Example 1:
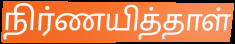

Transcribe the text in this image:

நிர்ணயித்தாள்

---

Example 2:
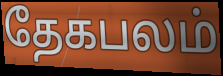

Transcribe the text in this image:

தேகபலம்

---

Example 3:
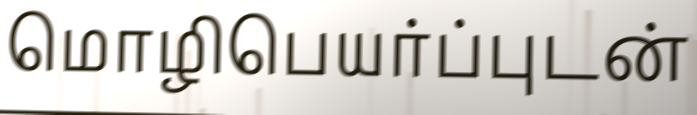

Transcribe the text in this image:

மொழிபெயர்ப்புடன்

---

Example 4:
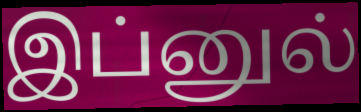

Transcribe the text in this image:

இப்னுல்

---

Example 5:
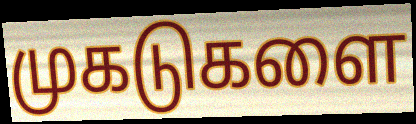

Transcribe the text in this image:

முகடுகளை